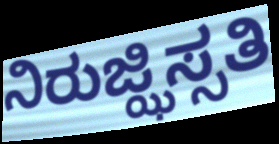
ನಿರುಜ್ಝಿಸ್ಸತಿ